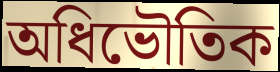
অধিভৌতিক